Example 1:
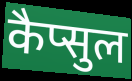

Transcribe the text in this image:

कैप्सुल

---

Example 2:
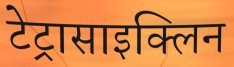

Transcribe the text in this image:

टेट्रासाइक्लिन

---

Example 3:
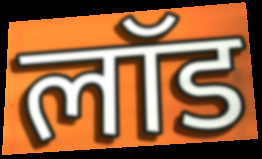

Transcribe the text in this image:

लॉड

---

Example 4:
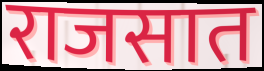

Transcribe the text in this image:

राजसात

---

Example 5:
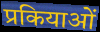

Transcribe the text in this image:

प्रकियाओं